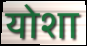
योशा